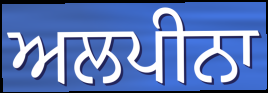
ਅਲਪੀਨਾ